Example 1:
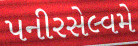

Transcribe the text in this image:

પનીરસેલ્વમે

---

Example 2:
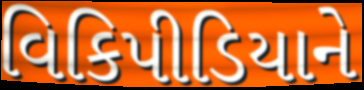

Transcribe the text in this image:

વિકિપીડિયાને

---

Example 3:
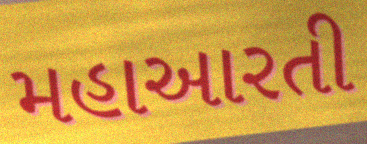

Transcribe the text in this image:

મહાઆરતી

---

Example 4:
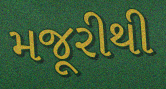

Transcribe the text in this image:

મજૂરીથી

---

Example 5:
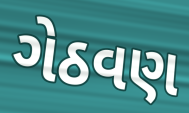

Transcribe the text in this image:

ગેઠવણ